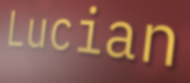
Lucian